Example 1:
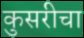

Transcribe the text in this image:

कुसरीचा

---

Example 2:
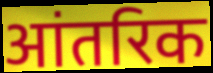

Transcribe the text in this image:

आंतरिक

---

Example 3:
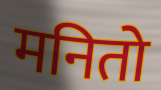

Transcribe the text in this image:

मनितो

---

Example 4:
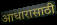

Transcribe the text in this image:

आधारासाठी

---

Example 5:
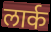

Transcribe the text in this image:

लार्क